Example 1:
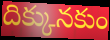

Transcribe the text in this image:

దిక్కునకుం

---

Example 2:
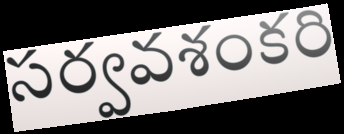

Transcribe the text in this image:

సర్వవశంకరి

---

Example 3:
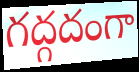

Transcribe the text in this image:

గద్గదంగా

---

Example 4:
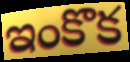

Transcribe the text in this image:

ఇంకొక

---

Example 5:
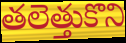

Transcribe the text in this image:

తలెత్తుకొని